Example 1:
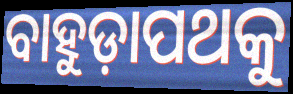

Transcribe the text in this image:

ବାହୁଡ଼ାପଥକୁ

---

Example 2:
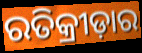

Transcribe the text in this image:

ରତିକ୍ରୀଡ଼ାର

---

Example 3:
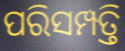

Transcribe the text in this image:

ପରିସମ୍ପତ୍ତି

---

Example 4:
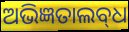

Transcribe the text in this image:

ଅଭିଜ୍ଞତାଲବ୍‌ଧ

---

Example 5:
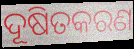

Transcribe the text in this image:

ଦୂଷିତକରଣ